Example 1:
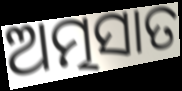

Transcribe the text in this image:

ଅତ୍ମସାତ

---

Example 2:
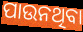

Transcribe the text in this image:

ପାଉନଥିବା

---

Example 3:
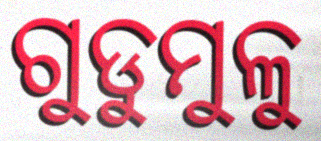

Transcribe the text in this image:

ଗୁଡୁମୁଳୁ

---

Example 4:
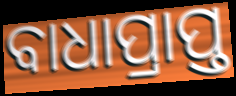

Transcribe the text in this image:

ବାଧାପ୍ରାପ୍ତ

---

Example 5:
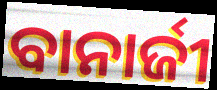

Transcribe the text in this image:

ବାନାର୍ଜୀ